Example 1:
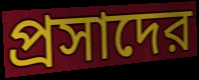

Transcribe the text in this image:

প্রসাদের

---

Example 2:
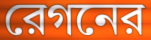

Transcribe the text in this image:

রেগনের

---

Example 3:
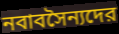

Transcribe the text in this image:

নবাবসৈন্যদের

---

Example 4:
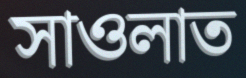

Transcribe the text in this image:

সাওলাত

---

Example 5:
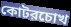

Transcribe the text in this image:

কোটরচোখ